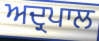
ਅਦ੍ਰਪਾਲ